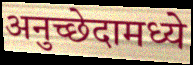
अनुच्छेदामध्ये